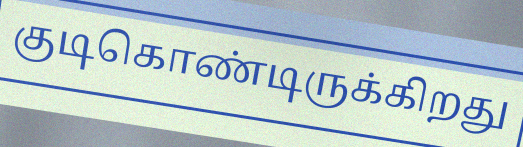
குடிகொண்டிருக்கிறது